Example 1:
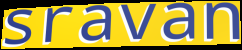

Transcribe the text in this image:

sravan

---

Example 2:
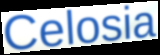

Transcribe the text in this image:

Celosia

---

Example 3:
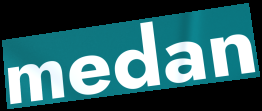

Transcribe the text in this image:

medan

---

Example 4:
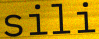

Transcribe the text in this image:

sili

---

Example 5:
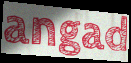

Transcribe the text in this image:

angad